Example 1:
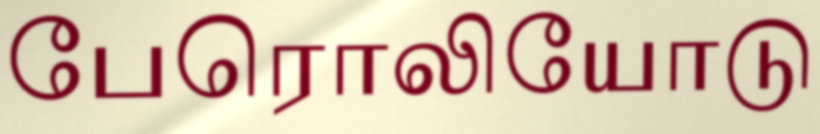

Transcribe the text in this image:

பேரொலியோடு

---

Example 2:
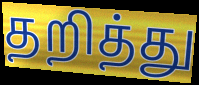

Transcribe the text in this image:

தறித்து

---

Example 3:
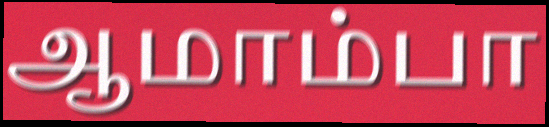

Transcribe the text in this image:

ஆமாம்பா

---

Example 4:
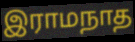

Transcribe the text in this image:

இராமநாத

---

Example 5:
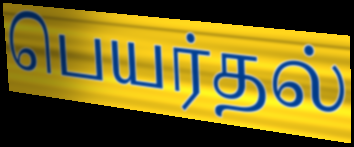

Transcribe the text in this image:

பெயர்தல்